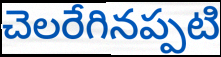
చెలరేగినప్పటి